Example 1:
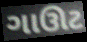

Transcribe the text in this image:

ગાઊટ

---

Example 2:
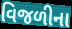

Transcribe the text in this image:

વિજળીના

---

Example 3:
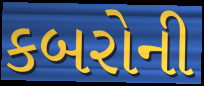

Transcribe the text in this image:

કબરોની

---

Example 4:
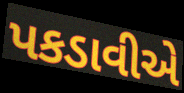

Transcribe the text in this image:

પકડાવીએ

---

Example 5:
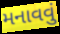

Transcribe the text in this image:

મનાવવું